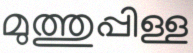
മുത്തുപ്പിള്ള